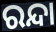
ରନ୍ଦା